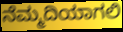
ನೆಮ್ಮದಿಯಾಗಲಿ